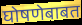
घोषणेबाबत